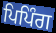
ਪਿਪਿੰਗ